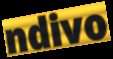
ndivo